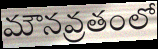
మౌనవ్రతంలో